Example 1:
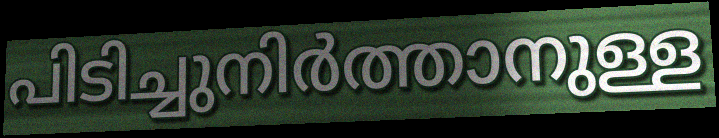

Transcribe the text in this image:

പിടിച്ചുനിർത്താനുള്ള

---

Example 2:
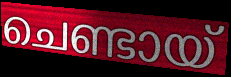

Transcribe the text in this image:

ചെണ്ടായ്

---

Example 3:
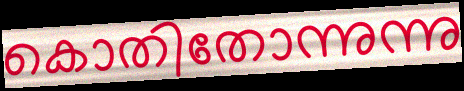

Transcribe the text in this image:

കൊതിതോന്നുന്നു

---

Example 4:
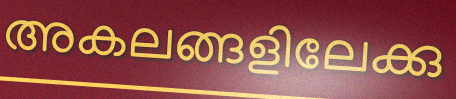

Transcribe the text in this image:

അകലങ്ങളിലേക്കു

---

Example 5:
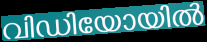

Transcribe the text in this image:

വിഡിയോയിൽ